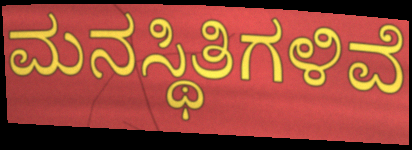
ಮನಸ್ಥಿತಿಗಳಿವೆ